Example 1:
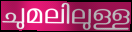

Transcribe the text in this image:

ചുമലിലുള്ള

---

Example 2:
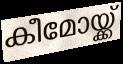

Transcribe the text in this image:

കീമോയ്ക്ക്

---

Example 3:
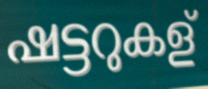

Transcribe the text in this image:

ഷട്ടറുകള്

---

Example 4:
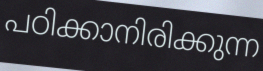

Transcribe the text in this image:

പഠിക്കാനിരിക്കുന്ന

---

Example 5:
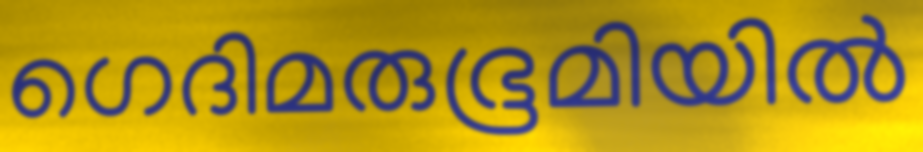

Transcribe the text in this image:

ഗെദിമരുഭൂമിയിൽ